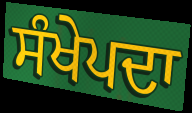
ਸੰਖੇਪਦਾ